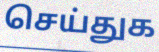
செய்துக